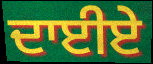
ਦਾਈਏ